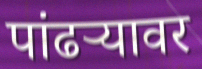
पांढर्‍यावर